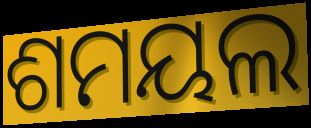
ଶମୟଲ